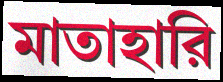
মাতাহারি